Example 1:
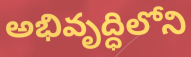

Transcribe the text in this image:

అభివృద్ధిలోని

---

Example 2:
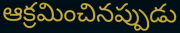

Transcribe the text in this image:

ఆక్రమించినప్పుడు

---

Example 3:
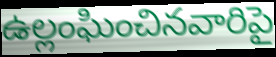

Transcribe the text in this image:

ఉల్లంఘించినవారిపై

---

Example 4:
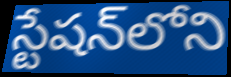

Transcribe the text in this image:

స్టేషన్‌లోని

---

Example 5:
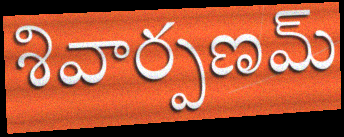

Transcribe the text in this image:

శివార్పణమ్